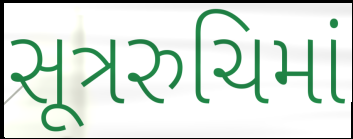
સૂત્રરુચિમાં